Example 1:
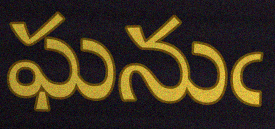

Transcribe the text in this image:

ఘనుఁ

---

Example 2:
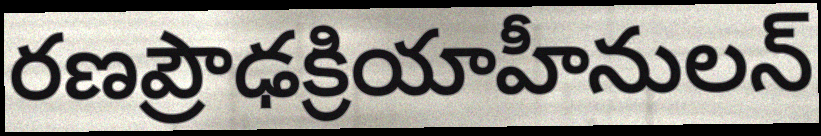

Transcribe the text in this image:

రణప్రౌఢక్రియాహీనులన్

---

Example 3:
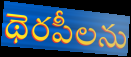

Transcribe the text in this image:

థెరపీలను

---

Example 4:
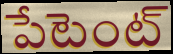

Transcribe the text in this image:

పేటెంట్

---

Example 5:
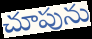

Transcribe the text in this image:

చూపును